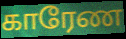
காரேண